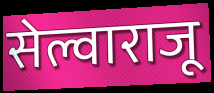
सेल्वाराजू